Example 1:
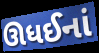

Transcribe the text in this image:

ઊધઈનાં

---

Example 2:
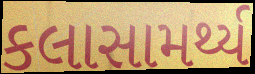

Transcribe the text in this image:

કલાસામર્થ્ય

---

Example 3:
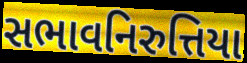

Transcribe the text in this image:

સભાવનિરુત્તિયા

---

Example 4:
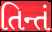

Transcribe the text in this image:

તિન્તં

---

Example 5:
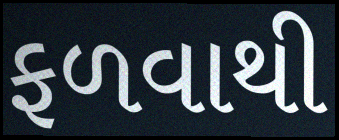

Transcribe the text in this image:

ફળવાથી